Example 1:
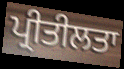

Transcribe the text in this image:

ਪ੍ਰੀਤੀਲਤਾ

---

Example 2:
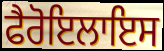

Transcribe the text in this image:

ਫੈਰੋਇਲਾਇਸ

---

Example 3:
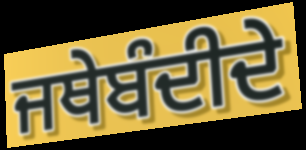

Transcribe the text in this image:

ਜਥੇਬੰਦੀਦੇ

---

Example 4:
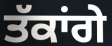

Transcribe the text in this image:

ਤੱਕਾਂਗੇ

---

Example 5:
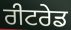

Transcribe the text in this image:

ਰੀਟਰੇਡ